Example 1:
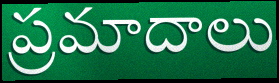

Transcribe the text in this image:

ప్రమాదాలు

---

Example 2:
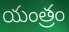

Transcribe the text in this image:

యంత్రం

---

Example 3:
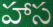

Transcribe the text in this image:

హాస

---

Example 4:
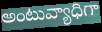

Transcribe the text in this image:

అంటువ్యాధిగా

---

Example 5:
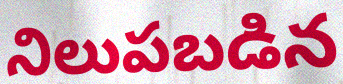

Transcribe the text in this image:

నిలుపబడిన